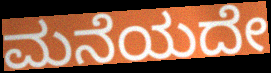
ಮನೆಯದೇ